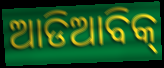
ଆଡିଆବିକ୍